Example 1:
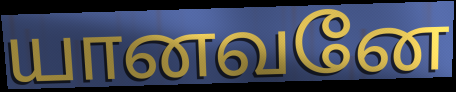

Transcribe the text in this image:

யானவனே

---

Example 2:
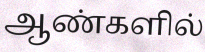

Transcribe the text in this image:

ஆண்களில்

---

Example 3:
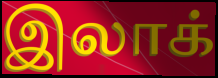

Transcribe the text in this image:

இலாக்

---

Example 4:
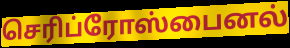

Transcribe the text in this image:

செரிப்ரோஸ்பைனல்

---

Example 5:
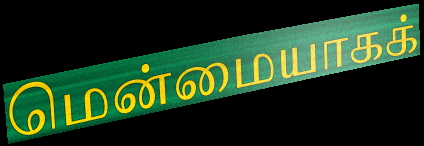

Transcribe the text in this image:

மென்மையாகக்